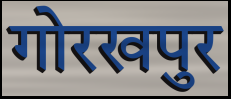
गोरखपुर